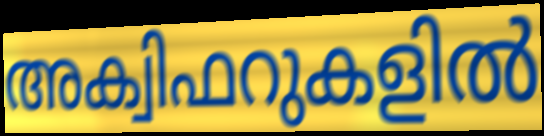
അക്വിഫറുകളിൽ